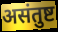
असंतुष्ट